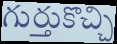
గుర్తుకొచ్చి